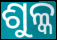
ଶୁଳ୍କ